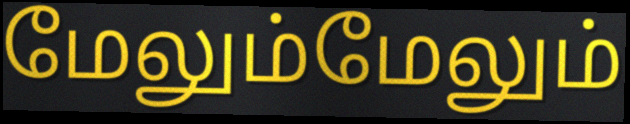
மேலும்மேலும்